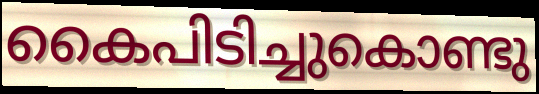
കൈപിടിച്ചുകൊണ്ടു